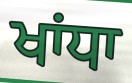
ਖਾਂਧਾ